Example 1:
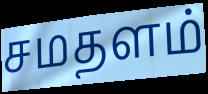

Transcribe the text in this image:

சமதளம்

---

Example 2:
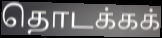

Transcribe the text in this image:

தொடக்கக்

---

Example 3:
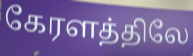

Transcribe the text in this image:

கேரளத்திலே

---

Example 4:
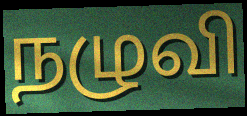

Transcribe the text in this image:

நழுவி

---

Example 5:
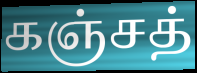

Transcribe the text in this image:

கஞ்சத்